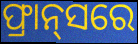
ଫ୍ରାନ୍‌ସରେ